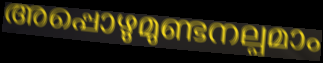
അപ്പൊഴുമുണ്ടനല്പമാം